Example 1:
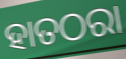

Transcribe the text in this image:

ହାତଠରା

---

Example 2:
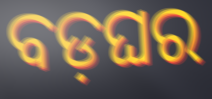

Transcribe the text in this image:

ବଡ଼ଘର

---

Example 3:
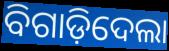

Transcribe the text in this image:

ବିଗାଡ଼ିଦେଲା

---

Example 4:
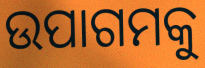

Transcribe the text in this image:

ଉପାଗମକୁ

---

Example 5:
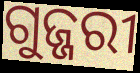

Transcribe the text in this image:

ଗୁଜ୍ଜରୀ